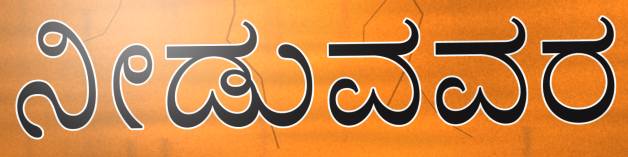
ನೀಡುವವರ